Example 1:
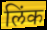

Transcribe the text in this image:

लिंक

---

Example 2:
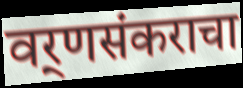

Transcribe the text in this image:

वर्णसंकराचा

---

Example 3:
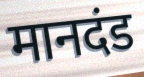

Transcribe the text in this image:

मानदंड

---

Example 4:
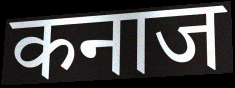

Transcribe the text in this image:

कनाज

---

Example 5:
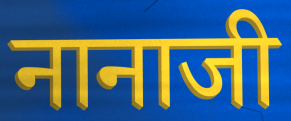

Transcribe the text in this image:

नानाजी